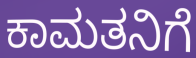
ಕಾಮತನಿಗೆ